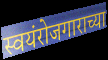
स्वयंरोजगाराच्या